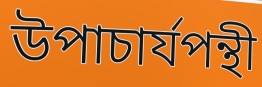
উপাচার্যপন্থী